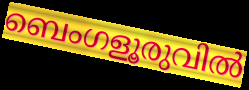
ബെംഗളൂരുവിൽ